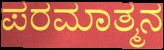
ಪರಮಾತ್ಮನ